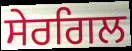
ਸੇਰਗਿਲ